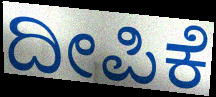
ದೀಪಿಕೆ